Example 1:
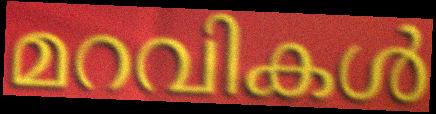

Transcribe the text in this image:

മറവികൾ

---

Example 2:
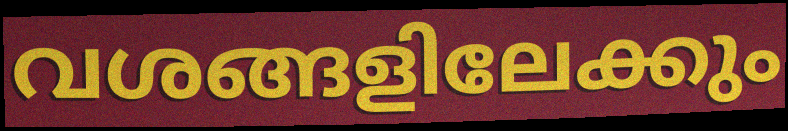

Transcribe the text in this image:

വശങ്ങളിലേക്കും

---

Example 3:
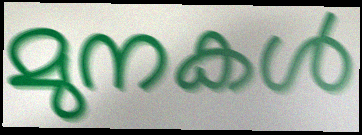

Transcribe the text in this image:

മുനകൾ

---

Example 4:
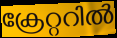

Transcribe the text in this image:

ക്രേറ്ററിൽ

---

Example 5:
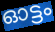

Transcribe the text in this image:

ഓട്ടം